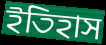
ইতিহাস